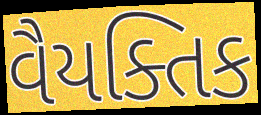
વૈયક્તિક